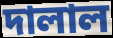
দালাল